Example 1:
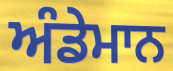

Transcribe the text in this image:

ਅੰਡੇਮਾਨ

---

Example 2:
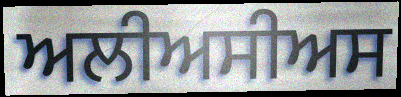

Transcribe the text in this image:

ਅਲੀਅਸੀਅਸ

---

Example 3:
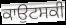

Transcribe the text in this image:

ਕਾਉਟਸਕੀ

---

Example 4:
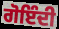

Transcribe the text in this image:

ਗੋਇੰਦੀ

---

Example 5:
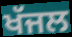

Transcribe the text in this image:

ਖੱਜਲ